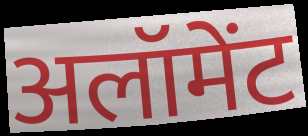
अलॉमेंट